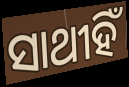
ସାଥୀହିଁ